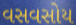
વસવસોય